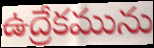
ఉద్రేకమును